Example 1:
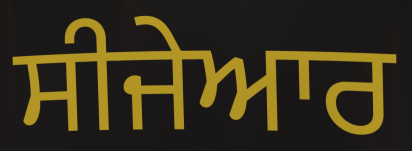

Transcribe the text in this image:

ਸੀਜੇਆਰ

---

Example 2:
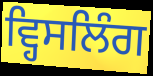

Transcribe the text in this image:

ਵ੍ਹਿਸਲਿੰਗ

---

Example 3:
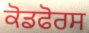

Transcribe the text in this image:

ਕੋਡਫੋਰਸ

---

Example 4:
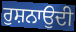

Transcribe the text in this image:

ਰੁਸ਼ਨਾਉਦੀ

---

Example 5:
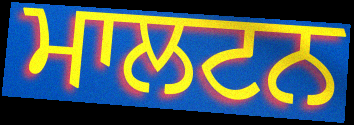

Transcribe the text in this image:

ਮਾਲਟਨ